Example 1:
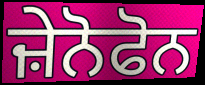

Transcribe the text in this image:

ਜ਼ੇਨੋਫੋਨ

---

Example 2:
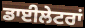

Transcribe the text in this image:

ਡਾਈਲੇਟਰਾਂ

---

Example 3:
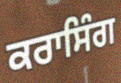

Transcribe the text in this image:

ਕਰਾਸਿੰਗ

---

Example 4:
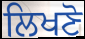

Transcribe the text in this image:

ਲਿਖਣੋ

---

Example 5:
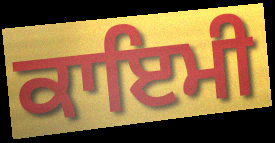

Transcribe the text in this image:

ਕਾਇਮੀ